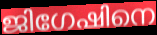
ജിഗേഷിനെ